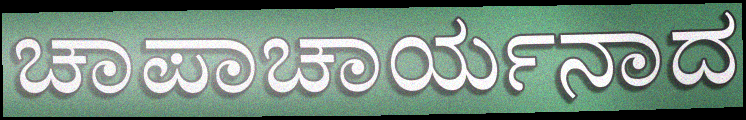
ಚಾಪಾಚಾರ್ಯನಾದ